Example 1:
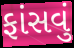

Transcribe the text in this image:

ફાંસવું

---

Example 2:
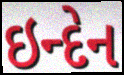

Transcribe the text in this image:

ઇન્દેન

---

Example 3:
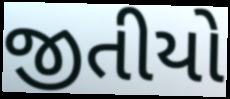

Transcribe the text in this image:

જીતીયો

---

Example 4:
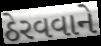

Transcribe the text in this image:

ઠેરવવાને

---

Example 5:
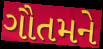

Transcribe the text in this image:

ગૌતમને